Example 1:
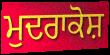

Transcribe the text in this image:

ਮੁਦਰਾਕੋਸ਼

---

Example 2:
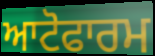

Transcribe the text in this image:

ਆਟੋਫਾਰਮ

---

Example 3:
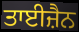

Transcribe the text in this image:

ਤਾਈਜ਼ੈਨ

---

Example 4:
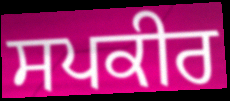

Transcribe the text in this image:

ਸਪਕੀਰ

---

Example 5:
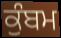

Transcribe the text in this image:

ਕੁੰਬਮ